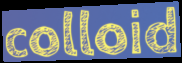
colloid